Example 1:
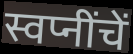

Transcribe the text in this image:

स्वप्नींचें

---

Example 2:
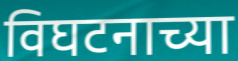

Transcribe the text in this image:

विघटनाच्या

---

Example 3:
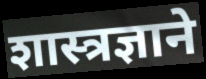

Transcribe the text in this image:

शास्त्रज्ञाने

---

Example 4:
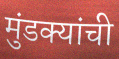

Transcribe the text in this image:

मुंडक्यांची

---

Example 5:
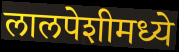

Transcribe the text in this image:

लालपेशीमध्ये